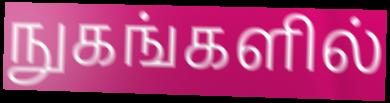
நுகங்களில்